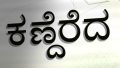
ಕಣ್ದೆರೆದ